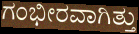
ಗಂಭೀರವಾಗಿತ್ತು